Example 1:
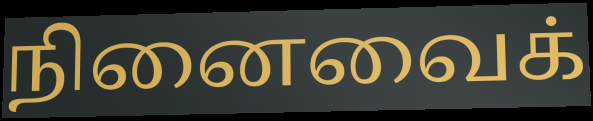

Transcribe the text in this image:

நினைவைக்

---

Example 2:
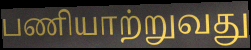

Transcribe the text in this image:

பணியாற்றுவது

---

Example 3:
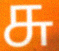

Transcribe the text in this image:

சு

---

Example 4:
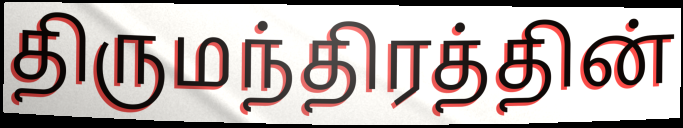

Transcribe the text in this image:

திருமந்திரத்தின்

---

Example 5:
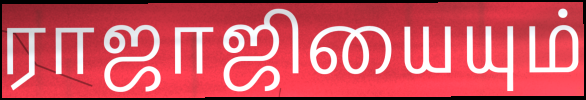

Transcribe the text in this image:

ராஜாஜியையும்